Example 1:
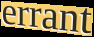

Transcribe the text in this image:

errant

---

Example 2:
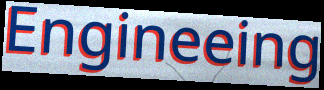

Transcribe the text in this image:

Engineeing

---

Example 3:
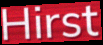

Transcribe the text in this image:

Hirst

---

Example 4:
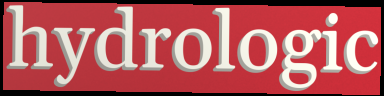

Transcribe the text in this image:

hydrologic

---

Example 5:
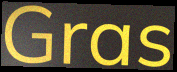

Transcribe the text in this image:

Gras